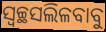
ସ୍ୱଚ୍ଛସଲିଳବାବୁ